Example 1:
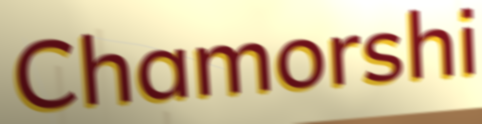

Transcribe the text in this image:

Chamorshi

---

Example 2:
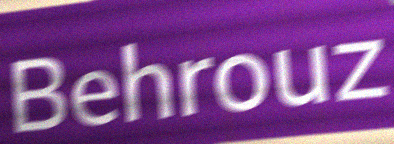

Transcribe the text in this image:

Behrouz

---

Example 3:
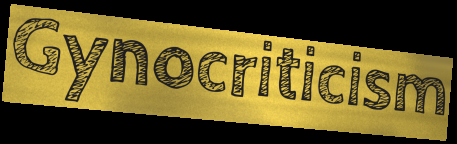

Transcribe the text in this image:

Gynocriticism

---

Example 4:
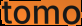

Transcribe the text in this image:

tomo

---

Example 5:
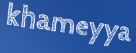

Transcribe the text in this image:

khameyya